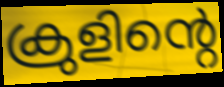
ക്രുളിന്റെ